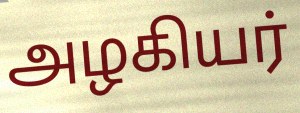
அழகியர்